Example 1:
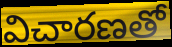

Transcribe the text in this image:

విచారణతో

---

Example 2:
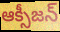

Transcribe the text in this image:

ఆక్సీజన్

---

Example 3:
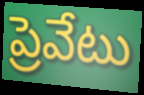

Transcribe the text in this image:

ప్రెవేటు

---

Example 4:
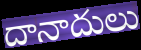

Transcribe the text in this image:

దానాదులు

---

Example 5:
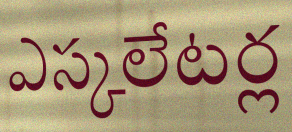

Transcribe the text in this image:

ఎస్కలేటర్ల